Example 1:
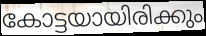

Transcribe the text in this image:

കോട്ടയായിരിക്കും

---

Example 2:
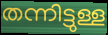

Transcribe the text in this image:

തന്നിട്ടുള്ള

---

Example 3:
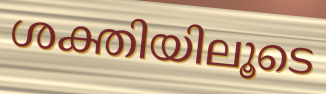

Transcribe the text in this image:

ശക്തിയിലൂടെ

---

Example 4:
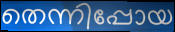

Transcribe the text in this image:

തെന്നിപ്പോയ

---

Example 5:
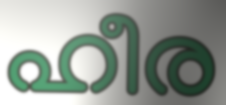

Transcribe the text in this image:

ഹീര